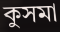
কুসমা